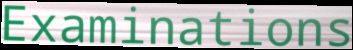
Examinations